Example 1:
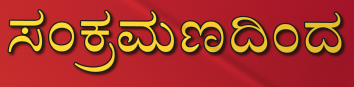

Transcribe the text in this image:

ಸಂಕ್ರಮಣದಿಂದ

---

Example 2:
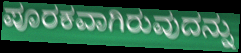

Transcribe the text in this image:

ಪೂರಕವಾಗಿರುವುದನ್ನು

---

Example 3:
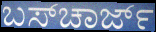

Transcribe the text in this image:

ಬಸ್‌ಚಾರ್ಜ್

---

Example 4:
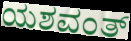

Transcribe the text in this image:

ಯಶವಂತ್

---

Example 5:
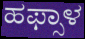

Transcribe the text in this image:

ಹಫ್ಸಾಳ